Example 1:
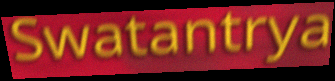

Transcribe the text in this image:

Swatantrya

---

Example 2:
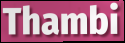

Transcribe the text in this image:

Thambi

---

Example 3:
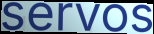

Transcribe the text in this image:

servos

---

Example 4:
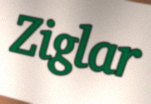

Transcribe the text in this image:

Ziglar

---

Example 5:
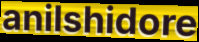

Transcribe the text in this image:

anilshidore